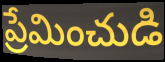
ప్రేమించుడి